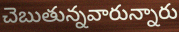
చెబుతున్నవారున్నారు